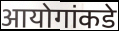
आयोगांकडे